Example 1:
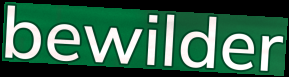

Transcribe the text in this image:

bewilder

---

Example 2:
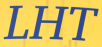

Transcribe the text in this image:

LHT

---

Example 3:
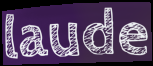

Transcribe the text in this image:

laude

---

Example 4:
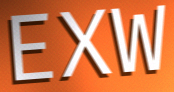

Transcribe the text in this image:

EXW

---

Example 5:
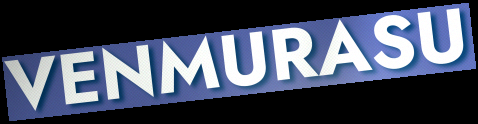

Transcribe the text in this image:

VENMURASU